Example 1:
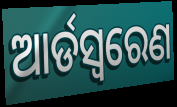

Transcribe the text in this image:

ଆର୍ଡସ୍ଵରେଣ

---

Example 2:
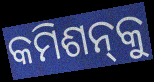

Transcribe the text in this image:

କମିଶନ୍‌କୁ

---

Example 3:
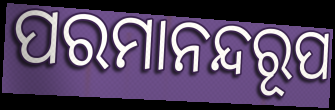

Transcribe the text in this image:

ପରମାନନ୍ଦରୂପ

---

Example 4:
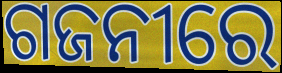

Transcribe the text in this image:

ଗଜନୀରେ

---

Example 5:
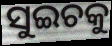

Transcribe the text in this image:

ସୁଇଚକୁ